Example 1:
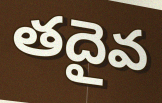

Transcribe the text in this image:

తదైవ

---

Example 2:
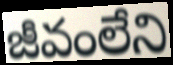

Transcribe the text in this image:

జీవంలేని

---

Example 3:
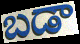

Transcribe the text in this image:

బడా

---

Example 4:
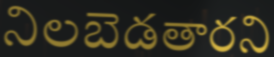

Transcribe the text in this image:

నిలబెడతారని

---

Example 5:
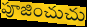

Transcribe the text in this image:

పూజించుచు